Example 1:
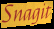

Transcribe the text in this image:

Snagit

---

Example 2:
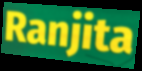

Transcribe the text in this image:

Ranjita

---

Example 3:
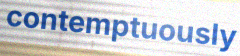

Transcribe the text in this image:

contemptuously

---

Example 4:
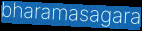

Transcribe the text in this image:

bharamasagara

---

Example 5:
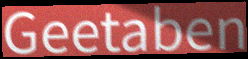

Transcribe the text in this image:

Geetaben